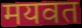
मयवत